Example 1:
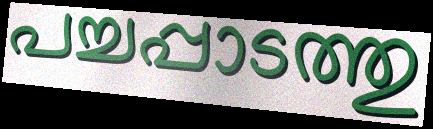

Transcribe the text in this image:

പച്ചപ്പാടത്തു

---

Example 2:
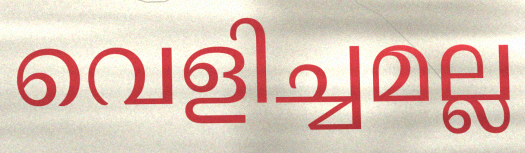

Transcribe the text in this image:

വെളിച്ചമല്ല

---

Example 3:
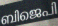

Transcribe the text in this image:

ബിജെപി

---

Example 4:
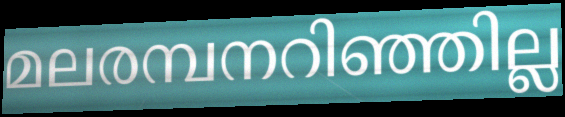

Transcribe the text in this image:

മലരമ്പനറിഞ്ഞില്ല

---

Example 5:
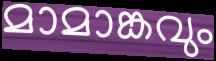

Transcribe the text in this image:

മാമാങ്കവും